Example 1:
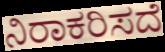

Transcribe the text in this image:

ನಿರಾಕರಿಸದೆ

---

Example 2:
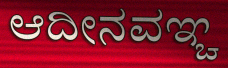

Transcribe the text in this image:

ಆದೀನವಞ್ಚ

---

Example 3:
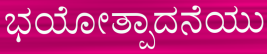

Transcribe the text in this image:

ಭಯೋತ್ಪಾದನೆಯು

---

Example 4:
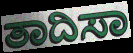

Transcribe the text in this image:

ತಾದಿಸಾ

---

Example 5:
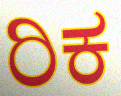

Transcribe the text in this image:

ರಿಕ